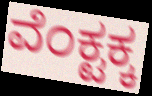
ವೆಂಕ್ಟಕ್ಕ